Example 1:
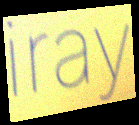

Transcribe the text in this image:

iray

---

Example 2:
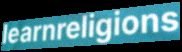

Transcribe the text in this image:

learnreligions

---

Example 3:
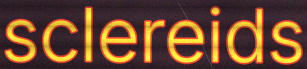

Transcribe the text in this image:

sclereids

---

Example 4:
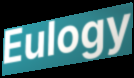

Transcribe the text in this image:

Eulogy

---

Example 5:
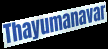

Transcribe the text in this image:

Thayumanavar